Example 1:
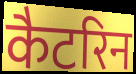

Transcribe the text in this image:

कैटरिन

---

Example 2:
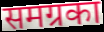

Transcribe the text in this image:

समग्रका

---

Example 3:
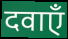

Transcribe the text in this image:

दवाएँ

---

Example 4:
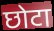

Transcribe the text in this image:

छोटा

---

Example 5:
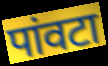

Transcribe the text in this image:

पांवटा